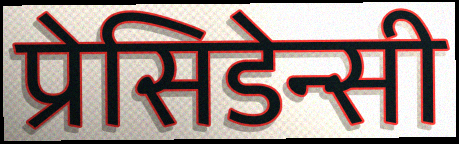
प्रेसिडेन्सी